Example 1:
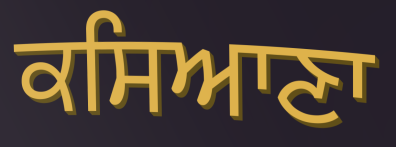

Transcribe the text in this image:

ਕਸਿਆਣਾ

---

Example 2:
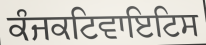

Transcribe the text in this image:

ਕੰਜਕਟਿਵਾਇਟਿਸ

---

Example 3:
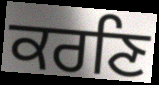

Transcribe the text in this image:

ਕਰਣਿ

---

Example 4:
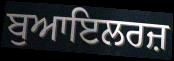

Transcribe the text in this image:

ਬੁਆਇਲਰਜ਼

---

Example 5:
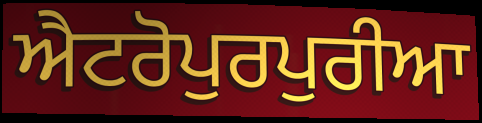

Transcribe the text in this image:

ਐਟਰੋਪੁਰਪੁਰੀਆ